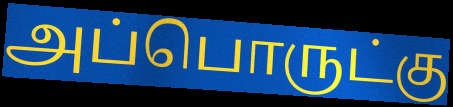
அப்பொருட்கு